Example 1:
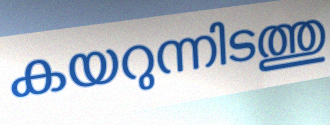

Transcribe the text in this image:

കയറുന്നിടത്തു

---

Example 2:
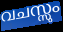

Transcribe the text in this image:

വചസ്സും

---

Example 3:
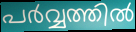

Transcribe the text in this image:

പർവ്വത്തിൽ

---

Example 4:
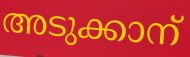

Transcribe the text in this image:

അടുക്കാന്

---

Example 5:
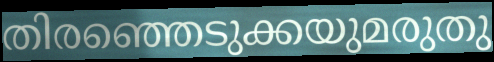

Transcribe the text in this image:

തിരഞ്ഞെടുക്കയുമരുതു